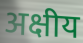
अक्षीय